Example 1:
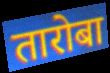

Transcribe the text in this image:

तारोबा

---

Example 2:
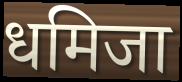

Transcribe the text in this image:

धमिजा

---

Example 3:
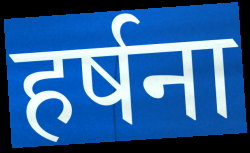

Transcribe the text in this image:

हर्षना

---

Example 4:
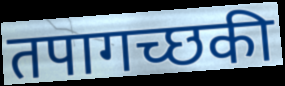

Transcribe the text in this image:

तपागच्छकी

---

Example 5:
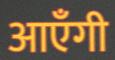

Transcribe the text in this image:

आएँगी